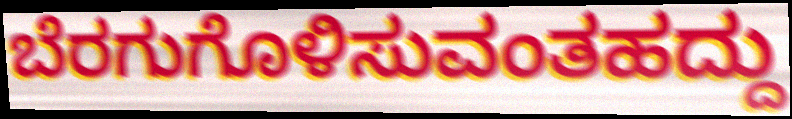
ಬೆರಗುಗೊಳಿಸುವಂತಹದ್ದು